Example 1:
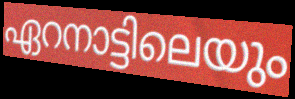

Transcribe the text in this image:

ഏറനാട്ടിലെയും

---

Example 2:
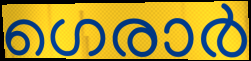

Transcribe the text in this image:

ഗെരാർ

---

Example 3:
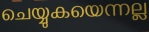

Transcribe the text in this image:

ചെയ്യുകയെന്നല്ല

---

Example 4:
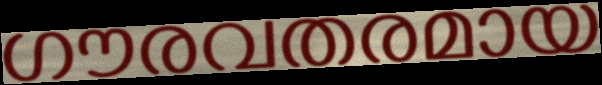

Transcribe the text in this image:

ഗൗരവതരമായ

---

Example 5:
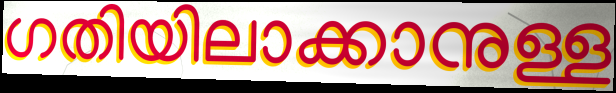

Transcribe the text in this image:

ഗതിയിലാക്കാനുള്ള